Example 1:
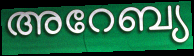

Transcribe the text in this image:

അറേബ്യ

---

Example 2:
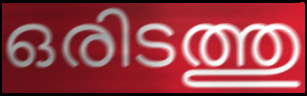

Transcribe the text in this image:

ഒരിടത്തു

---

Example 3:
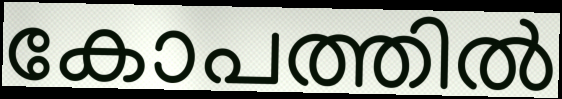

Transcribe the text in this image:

കോപത്തിൽ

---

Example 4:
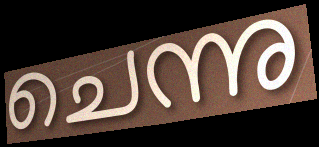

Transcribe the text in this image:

ചെന്നു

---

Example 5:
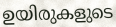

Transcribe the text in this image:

ഉയിരുകളുടെ